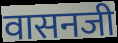
वासनजी